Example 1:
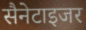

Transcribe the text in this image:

सैनेटाइजर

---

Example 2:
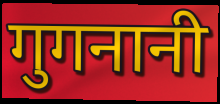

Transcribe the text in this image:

गुगनानी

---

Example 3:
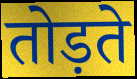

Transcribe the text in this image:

तोड़ते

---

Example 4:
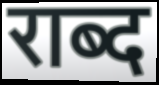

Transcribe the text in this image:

राब्द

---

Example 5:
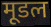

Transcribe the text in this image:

मूडल